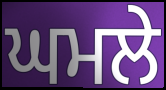
ਘਮਲੇ